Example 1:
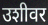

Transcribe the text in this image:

उशीवर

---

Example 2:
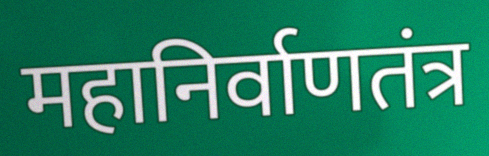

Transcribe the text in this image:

महानिर्वाणतंत्र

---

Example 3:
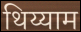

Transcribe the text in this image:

थिय्याम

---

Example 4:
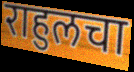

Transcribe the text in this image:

राहुलचा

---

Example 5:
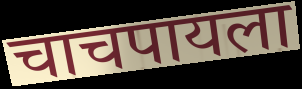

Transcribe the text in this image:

चाचपायला